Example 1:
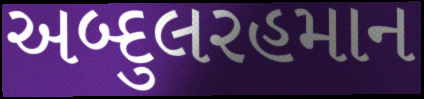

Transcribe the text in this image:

અબ્દુલરહમાન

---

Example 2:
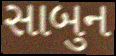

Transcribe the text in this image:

સાબુન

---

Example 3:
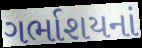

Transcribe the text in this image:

ગર્ભાશયનાં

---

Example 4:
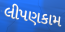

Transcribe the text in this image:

લીપણકામ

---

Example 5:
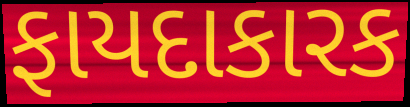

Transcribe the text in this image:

ફાયદાકારક